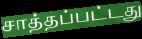
சாத்தப்பட்டது